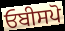
ਓਬੀਸਪੋ